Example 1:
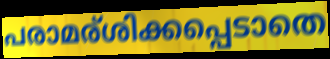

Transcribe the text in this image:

പരാമര്ശിക്കപ്പെടാതെ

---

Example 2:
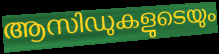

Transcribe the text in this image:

ആസിഡുകളുടെയും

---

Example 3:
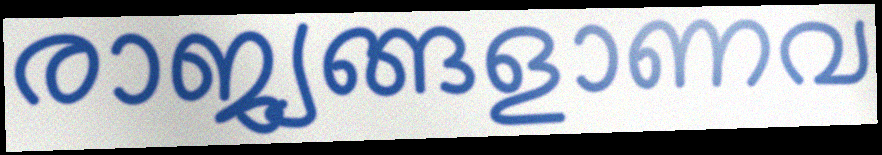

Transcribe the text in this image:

രാജ്യങ്ങളാണവ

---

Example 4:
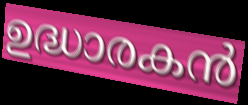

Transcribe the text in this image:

ഉദ്ധാരകൻ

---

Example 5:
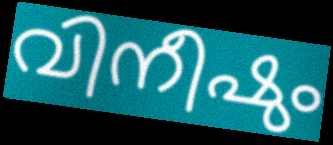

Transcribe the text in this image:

വിനീഷും